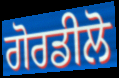
ਗੋਰਡੀਲੋ